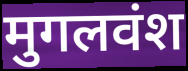
मुगलवंश